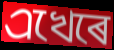
এখেৰে